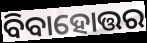
ବିବାହୋତ୍ତର